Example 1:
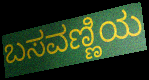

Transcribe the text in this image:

ಬಸವಣ್ಣಿಯ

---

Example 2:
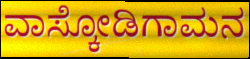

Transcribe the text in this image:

ವಾಸ್ಕೋಡಿಗಾಮನ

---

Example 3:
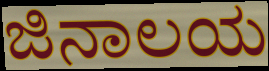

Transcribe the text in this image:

ಜಿನಾಲಯ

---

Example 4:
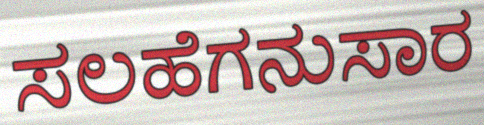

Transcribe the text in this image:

ಸಲಹೆಗನುಸಾರ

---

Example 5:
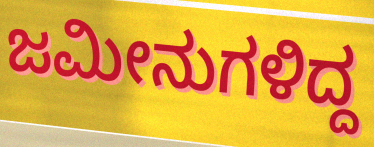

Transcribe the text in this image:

ಜಮೀನುಗಳಿದ್ದ